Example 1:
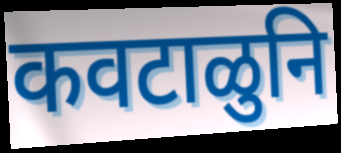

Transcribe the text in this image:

कवटाळुनि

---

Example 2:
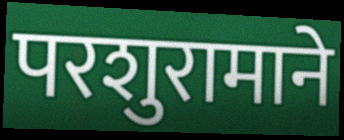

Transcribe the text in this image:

परशुरामाने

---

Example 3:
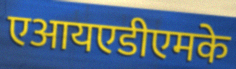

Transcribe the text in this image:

एआयएडीएमके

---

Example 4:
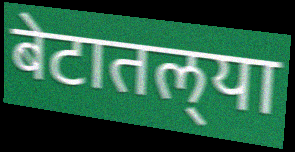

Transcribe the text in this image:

बेटातल्या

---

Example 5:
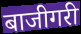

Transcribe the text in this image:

बाजीगरी